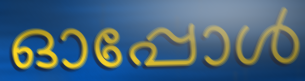
ഓപ്പോൾ